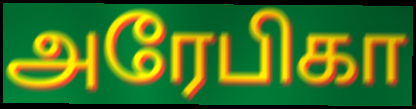
அரேபிகா